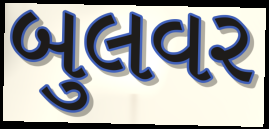
બુલવર